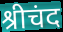
श्रीचंद